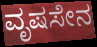
ವೃಷಸೇನ